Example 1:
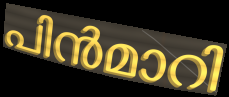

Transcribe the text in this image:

പിൻമാറി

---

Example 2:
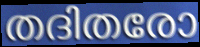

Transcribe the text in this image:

തദിതരോ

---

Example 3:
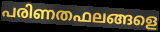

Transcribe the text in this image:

പരിണതഫലങ്ങളെ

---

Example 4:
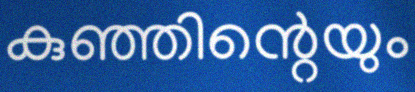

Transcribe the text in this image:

കുഞ്ഞിന്റെയും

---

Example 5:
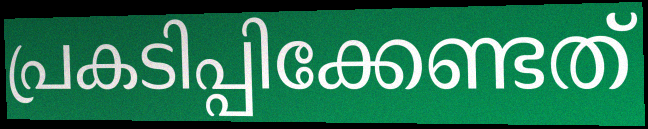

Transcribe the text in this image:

പ്രകടിപ്പിക്കേണ്ടത്